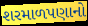
શરમાળપણાનો